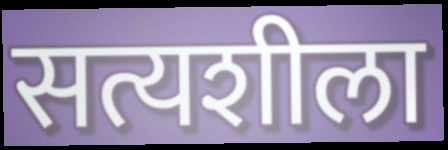
सत्यशीला